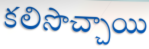
కలిసొచ్చాయి